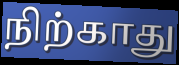
நிற்காது